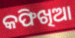
କଫିଖିଆ